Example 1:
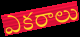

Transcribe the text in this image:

ఎకరాలు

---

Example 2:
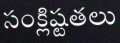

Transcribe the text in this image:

సంక్లిష్టతలు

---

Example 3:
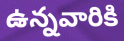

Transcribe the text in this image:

ఉన్నవారికి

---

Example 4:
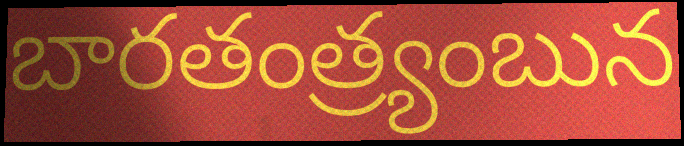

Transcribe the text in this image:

బారతంత్ర్యంబున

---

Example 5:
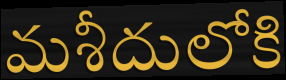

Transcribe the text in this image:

మశీదులోకి